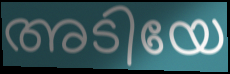
അടിയേ